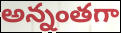
అన్నంతగా